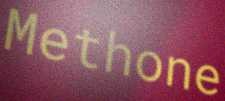
Methone